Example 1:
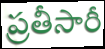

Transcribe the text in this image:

ప్రతీసారీ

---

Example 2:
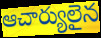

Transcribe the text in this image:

ఆచార్యులైన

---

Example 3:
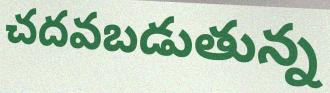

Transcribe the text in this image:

చదవబడుతున్న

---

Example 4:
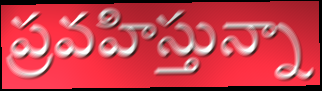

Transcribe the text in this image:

ప్రవహిస్తున్నా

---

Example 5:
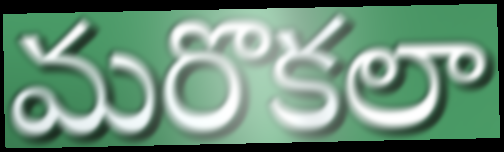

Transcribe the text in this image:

మరొకలా